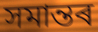
সমান্তৰ